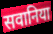
सवानिया